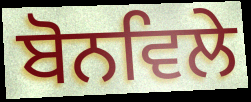
ਬੋਨਵਿਲੇ